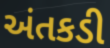
અંતકડી